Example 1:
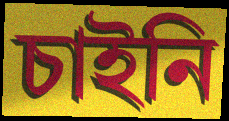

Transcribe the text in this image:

চাইনি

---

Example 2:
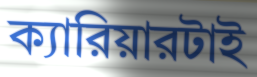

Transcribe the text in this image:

ক্যারিয়ারটাই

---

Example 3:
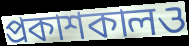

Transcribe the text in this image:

প্রকাশকালও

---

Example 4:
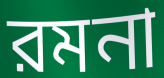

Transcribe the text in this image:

রমনা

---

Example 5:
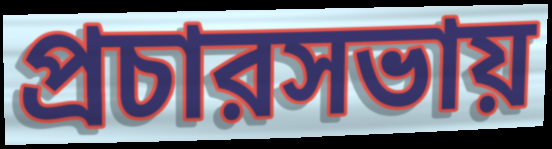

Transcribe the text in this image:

প্রচারসভায়